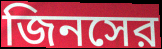
জিনসের